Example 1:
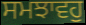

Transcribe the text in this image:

ਸਮਝਾਵਹੁ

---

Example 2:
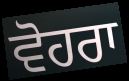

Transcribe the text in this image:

ਵੋਹਰਾ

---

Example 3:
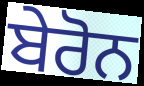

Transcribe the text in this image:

ਬੇਰੋਨ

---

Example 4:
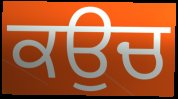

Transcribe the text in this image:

ਕਉਚ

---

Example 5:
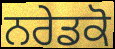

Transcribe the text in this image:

ਨਰੇਡਕੋ